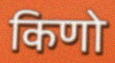
किणो